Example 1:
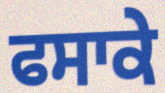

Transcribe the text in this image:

ਫਸਾਕੇ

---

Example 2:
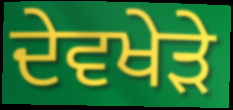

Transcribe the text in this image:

ਦੇਵਖੇੜੇ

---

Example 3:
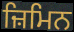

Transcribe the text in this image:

ਜ਼ਿਮਿਨ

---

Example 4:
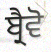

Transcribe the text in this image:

ਬ੍ਰੈਵੋ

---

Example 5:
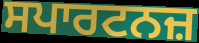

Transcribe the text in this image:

ਸਪਾਰਟਨਜ਼